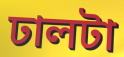
ঢালটা